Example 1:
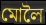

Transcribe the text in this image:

মোলৈ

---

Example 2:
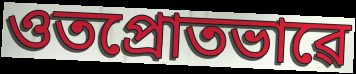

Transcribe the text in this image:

ওতপ্ৰোতভাৱে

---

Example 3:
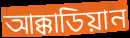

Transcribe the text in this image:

আক্কাডিয়ান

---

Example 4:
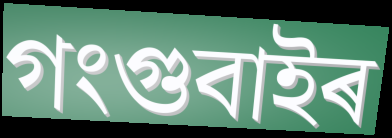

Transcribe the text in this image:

গংগুবাইৰ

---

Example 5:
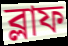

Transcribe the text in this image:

ব্লাফ